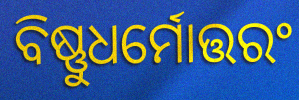
ବିଷ୍ଣୁଧର୍ମୋତ୍ତରଂ